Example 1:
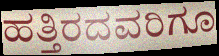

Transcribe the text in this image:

ಹತ್ತಿರದವರಿಗೂ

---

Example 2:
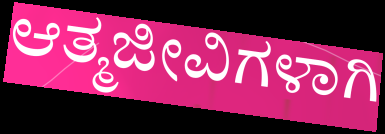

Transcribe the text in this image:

ಆತ್ಮಜೀವಿಗಳಾಗಿ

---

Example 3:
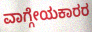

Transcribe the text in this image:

ವಾಗ್ಗೇಯಕಾರರ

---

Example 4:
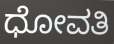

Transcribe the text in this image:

ಧೋವತಿ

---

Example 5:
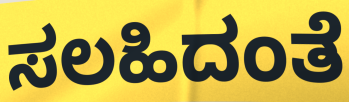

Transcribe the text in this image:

ಸಲಹಿದಂತೆ